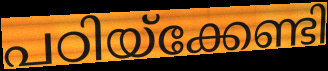
പഠിയ്ക്കേണ്ടി